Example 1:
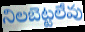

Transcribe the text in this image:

నిలబెట్టలేవు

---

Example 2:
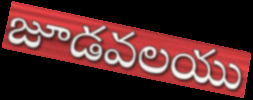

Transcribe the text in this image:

జూడవలయు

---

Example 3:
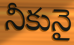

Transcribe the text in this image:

నీకునై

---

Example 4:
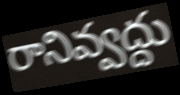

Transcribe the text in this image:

రానివ్వద్దు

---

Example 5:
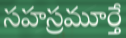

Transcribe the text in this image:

సహస్రమూర్తే